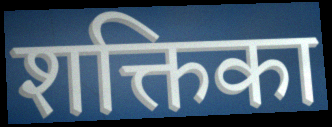
शक्तिका